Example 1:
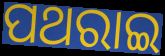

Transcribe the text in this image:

ପଥରାଇ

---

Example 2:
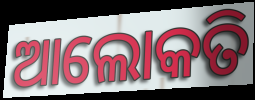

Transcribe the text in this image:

ଆଲୋକତି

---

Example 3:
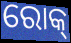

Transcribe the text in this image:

ରୋକ୍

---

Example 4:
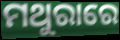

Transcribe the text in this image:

ମଥୁରାରେ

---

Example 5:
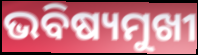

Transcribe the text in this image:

ଭବିଷ୍ୟମୁଖୀ